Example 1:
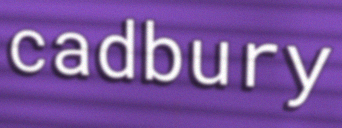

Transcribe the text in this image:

cadbury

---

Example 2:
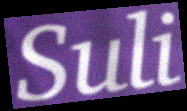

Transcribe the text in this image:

Suli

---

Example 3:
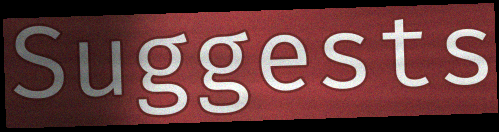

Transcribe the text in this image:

Suggests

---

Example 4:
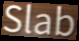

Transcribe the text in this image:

Slab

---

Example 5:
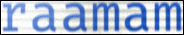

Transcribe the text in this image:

raamam